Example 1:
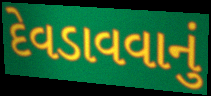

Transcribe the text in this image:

દેવડાવવાનું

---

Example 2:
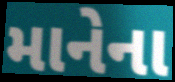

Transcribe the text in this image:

માનેના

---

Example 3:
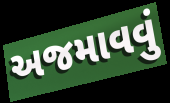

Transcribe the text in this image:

અજમાવવું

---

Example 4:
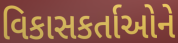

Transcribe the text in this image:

વિકાસકર્તાઓને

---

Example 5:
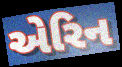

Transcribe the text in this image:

એરિન